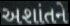
અશાંતને